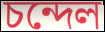
চন্দেল